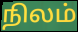
நிலம்